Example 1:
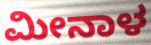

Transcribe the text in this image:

ಮೀನಾಳ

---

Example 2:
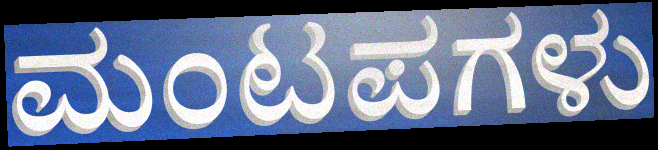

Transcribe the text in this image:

ಮಂಟಪಗಳು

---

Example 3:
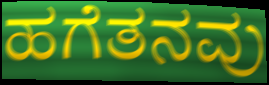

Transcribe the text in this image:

ಹಗೆತನವು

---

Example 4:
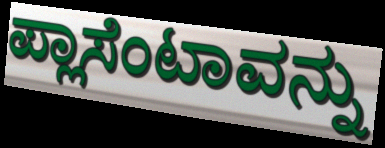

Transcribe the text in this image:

ಪ್ಲಾಸೆಂಟಾವನ್ನು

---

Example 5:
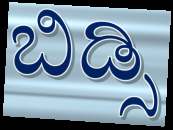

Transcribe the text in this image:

ಬಿಡ್ಸಿ